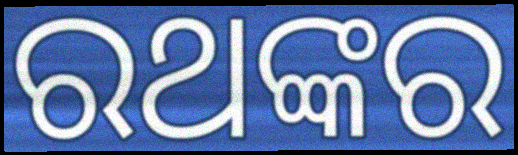
ରଥଙ୍କର